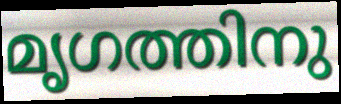
മൃഗത്തിനു